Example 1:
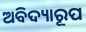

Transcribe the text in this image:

ଅବିଦ୍ୟାରୂପ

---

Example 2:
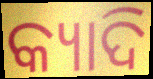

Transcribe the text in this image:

କ୍ୟାଦି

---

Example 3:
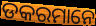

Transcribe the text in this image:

ଡକରମାନେ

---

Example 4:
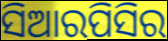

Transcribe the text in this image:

ସିଆରପିସିର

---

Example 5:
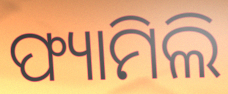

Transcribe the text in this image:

ଫ୍ୟାମିଲି